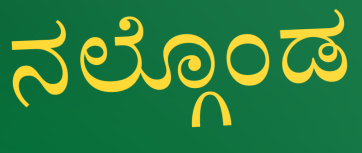
ನಲ್ಗೊಂಡ